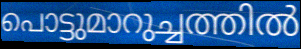
പൊട്ടുമാറുച്ചത്തിൽ